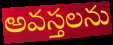
అవస్తలను